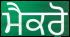
ਮੈਕਰੋ